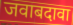
जवाबदावा